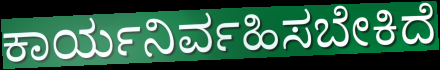
ಕಾರ್ಯನಿರ್ವಹಿಸಬೇಕಿದೆ